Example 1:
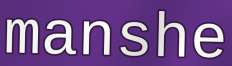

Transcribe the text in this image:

manshe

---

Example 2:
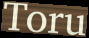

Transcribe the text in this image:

Toru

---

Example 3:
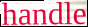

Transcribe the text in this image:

handle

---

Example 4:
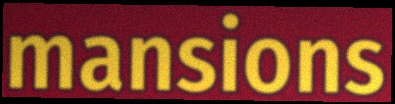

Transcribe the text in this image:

mansions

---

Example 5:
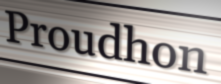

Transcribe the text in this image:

Proudhon